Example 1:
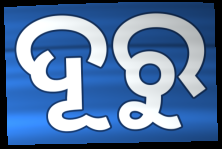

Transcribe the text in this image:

ଦୂରୁ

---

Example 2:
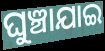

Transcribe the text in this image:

ଘୁଞ୍ଚାଯାଇ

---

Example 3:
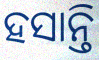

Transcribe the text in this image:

ହସାନ୍ତି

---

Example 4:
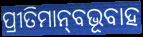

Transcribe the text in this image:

ପ୍ରୀତିମାନ୍‌ବଭୂବାହ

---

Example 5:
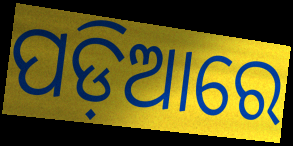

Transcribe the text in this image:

ପଡ଼ିଆରେ